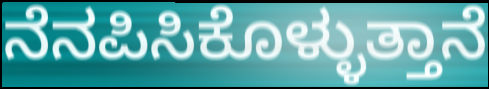
ನೆನಪಿಸಿಕೊಳ್ಳುತ್ತಾನೆ